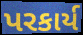
પરકાર્ય